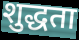
शुद्धता